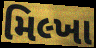
મિલ્ખા